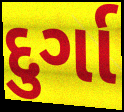
દુર્ગા